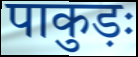
पाकुड़ः